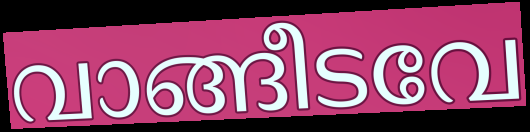
വാങ്ങീടവേ